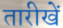
तारीखें